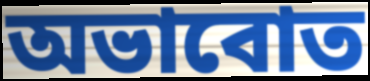
অভাবোত